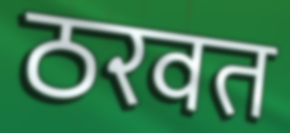
ठरवत